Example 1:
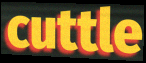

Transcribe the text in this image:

cuttle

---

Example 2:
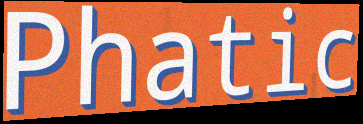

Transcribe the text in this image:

Phatic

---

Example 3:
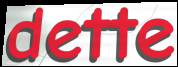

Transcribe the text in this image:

dette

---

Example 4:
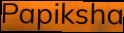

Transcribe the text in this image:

Papiksha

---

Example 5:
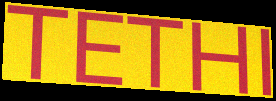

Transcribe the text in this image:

TETHI